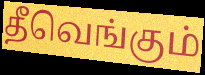
தீவெங்கும்